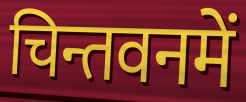
चिन्तवनमें